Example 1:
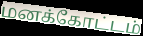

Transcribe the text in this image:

மனக்கோட்டம்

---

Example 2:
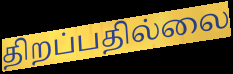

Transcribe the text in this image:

திறப்பதில்லை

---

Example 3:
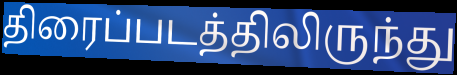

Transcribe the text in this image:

திரைப்படத்திலிருந்து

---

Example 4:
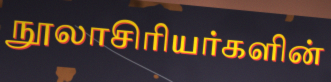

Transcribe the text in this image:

நூலாசிரியர்களின்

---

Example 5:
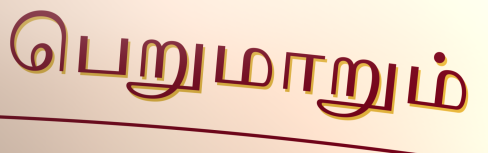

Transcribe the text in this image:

பெறுமாறும்